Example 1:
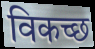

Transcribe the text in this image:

विकच्छ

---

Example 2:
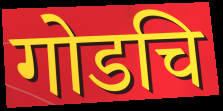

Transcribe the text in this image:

गोडचि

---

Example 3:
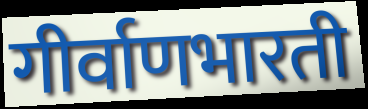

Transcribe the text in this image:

गीर्वाणभारती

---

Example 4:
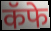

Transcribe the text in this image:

कॅफे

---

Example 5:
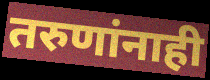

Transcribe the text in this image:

तरुणांनाही